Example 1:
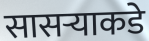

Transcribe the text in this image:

सासऱ्याकडे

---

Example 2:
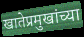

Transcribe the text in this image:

खातेप्रमुखांच्या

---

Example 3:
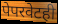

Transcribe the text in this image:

पेपरवेटही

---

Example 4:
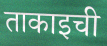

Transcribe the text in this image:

ताकाइची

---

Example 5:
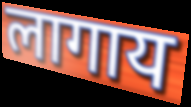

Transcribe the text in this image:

लागाय